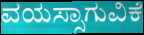
ವಯಸ್ಸಾಗುವಿಕೆ